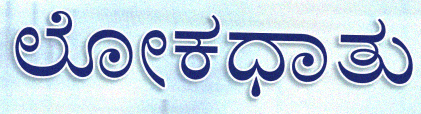
ಲೋಕಧಾತು